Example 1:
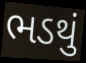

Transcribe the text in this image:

ભડથું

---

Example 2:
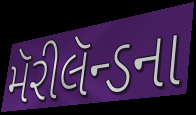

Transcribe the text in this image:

મૅરીલૅન્ડના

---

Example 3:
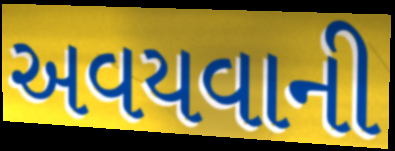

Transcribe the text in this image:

અવયવાની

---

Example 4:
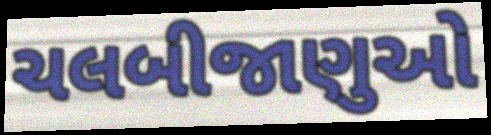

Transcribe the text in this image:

ચલબીજાણુઓ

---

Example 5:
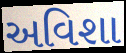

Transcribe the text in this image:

અવિશા